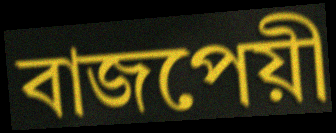
বাজপেয়ী